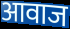
आवाज